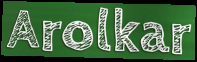
Arolkar